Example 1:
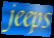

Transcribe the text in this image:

jeeps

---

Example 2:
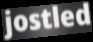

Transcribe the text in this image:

jostled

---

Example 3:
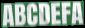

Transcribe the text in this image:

ABCDEFA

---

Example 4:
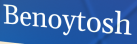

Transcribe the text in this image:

Benoytosh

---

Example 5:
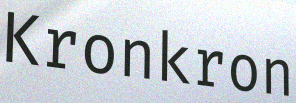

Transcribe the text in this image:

Kronkron